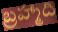
బ్రహ్మాది